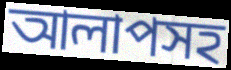
আলাপসহ